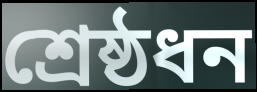
শ্রেষ্ঠধন